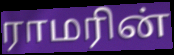
ராமரின்